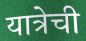
यात्रेची